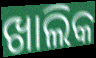
ଖାଲିକ